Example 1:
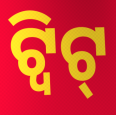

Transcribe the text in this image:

ଟ୍ୱିଟ୍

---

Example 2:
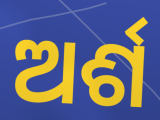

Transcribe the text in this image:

ଅର୍ଶ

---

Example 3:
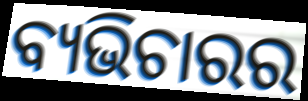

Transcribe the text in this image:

ବ୍ୟଭିଚାରର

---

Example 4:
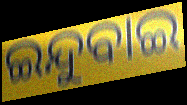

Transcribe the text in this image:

ଇନ୍ଦୁବାଇ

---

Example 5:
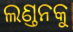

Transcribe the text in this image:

ଲଣ୍ଡନକୁ